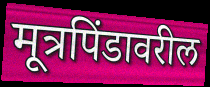
मूत्रपिंडावरील